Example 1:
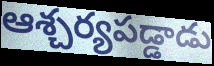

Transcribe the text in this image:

ఆశ్చర్యపడ్డాడు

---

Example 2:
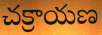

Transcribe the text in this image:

చక్రాయణ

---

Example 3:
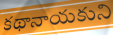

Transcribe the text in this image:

కథానాయకుని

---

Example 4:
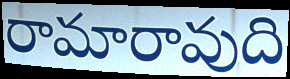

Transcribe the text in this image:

రామారావుది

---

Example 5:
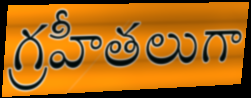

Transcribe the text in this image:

గ్రహీతలుగా